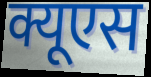
क्यूएस